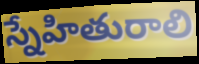
స్నేహితురాలి